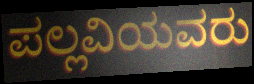
ಪಲ್ಲವಿಯವರು